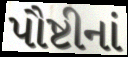
પૌષ્ટીનાં